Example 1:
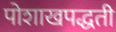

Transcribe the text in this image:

पोशाखपद्धती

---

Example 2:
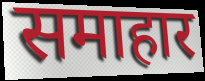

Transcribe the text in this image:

समाहार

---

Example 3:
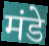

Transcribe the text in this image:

मंडे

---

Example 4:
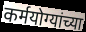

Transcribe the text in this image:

कर्मयोग्यांच्या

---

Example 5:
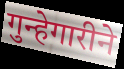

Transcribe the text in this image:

गुन्हेगारीने